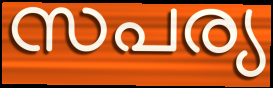
സപര്യ